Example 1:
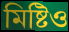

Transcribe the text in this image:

মিষ্টিও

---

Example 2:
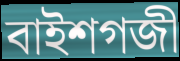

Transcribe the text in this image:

বাইশগজী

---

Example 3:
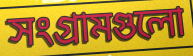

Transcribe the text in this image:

সংগ্রামগুলো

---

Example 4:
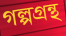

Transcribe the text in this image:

গল্পগ্রন্থ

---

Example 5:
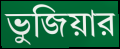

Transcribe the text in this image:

ভুজিয়ার